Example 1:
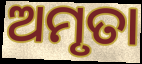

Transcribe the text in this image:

ଅମୃତା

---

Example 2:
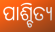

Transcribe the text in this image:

ପାଶ୍ଚିତ୍ୟ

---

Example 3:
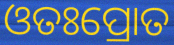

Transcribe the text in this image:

ଓତଃପ୍ରୋତ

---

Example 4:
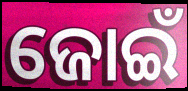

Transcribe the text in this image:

ଜୋଇଁ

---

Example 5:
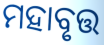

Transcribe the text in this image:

ମହାବୃତ୍ତ